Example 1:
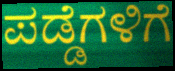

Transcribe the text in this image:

ಪಡ್ಡೆಗಳಿಗೆ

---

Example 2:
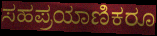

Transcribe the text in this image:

ಸಹಪ್ರಯಾಣಿಕರೂ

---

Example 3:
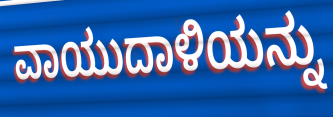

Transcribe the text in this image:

ವಾಯುದಾಳಿಯನ್ನು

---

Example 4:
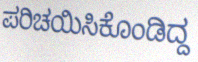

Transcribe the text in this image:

ಪರಿಚಯಿಸಿಕೊಂಡಿದ್ದ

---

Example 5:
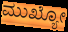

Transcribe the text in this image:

ಮುಖ್ಯೋ